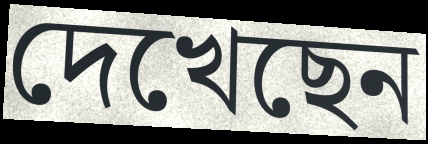
দেখেছেন